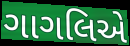
ગાગલિએ